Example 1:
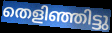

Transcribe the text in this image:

തെളിഞ്ഞിട്ടു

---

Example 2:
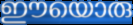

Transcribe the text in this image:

ഈയൊരു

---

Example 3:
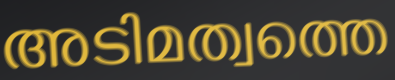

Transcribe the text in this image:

അടിമത്വത്തെ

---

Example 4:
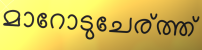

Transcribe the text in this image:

മാറോടുചേര്ത്ത്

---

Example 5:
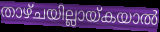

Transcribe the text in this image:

താഴ്ചയില്ലായ്കയാൽ